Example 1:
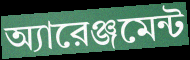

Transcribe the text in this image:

অ্যারেঞ্জমেন্ট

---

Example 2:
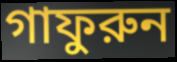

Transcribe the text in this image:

গাফুরুন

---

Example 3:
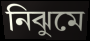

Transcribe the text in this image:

নিঝুমে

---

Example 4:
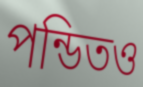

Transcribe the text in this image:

পন্ডিতও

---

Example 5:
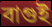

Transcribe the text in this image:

বাগুই